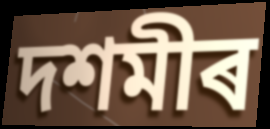
দশমীৰ